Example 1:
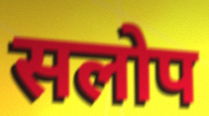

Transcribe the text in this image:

सलोप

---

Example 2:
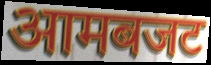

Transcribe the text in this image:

आमबजट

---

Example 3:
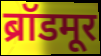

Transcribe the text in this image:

ब्रॉडमूर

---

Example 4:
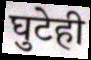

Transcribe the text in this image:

घुटेही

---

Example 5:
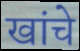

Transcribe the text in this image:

खांचे